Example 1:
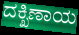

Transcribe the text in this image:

ದಕ್ಖಿಣಾಯ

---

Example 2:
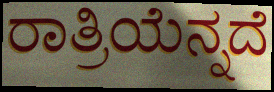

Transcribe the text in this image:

ರಾತ್ರಿಯೆನ್ನದೆ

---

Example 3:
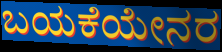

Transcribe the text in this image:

ಬಯಕೆಯೇನರ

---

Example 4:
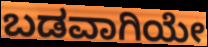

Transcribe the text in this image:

ಬಡವಾಗಿಯೇ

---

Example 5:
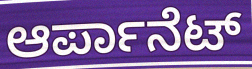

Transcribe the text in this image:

ಆರ್ಪಾನೆಟ್